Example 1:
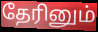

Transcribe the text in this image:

தேரினும்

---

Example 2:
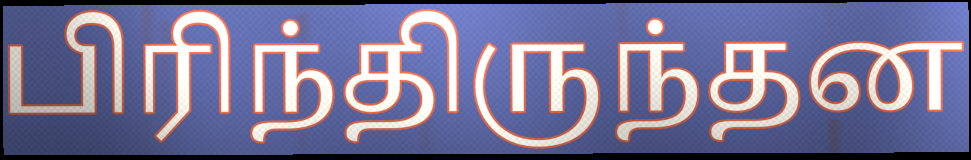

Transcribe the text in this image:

பிரிந்திருந்தன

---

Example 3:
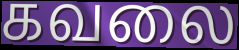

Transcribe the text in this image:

கவலை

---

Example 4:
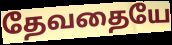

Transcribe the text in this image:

தேவதையே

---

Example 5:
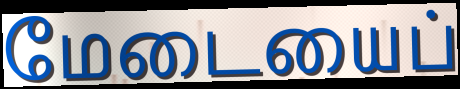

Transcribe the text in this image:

மேடையைப்